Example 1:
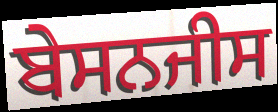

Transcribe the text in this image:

ਬੇਸਨਜੀਸ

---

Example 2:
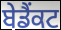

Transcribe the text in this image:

ਬੇਡੈਂਕਟ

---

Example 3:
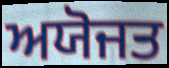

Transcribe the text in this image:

ਅਯੋਜਤ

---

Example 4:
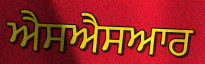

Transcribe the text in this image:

ਐਸਐਸਆਰ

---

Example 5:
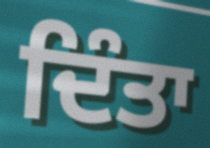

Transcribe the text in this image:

ਦਿੰਤਾ